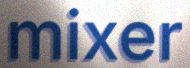
mixer